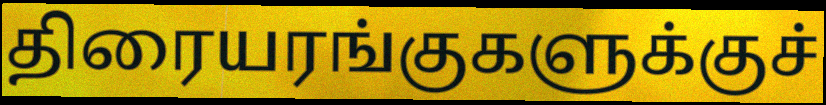
திரையரங்குகளுக்குச்